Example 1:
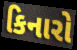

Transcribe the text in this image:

કિનારો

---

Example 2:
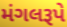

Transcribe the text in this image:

મંગલરૂપે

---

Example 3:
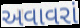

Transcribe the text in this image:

અવાવરાં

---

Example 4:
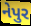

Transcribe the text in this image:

નેપુર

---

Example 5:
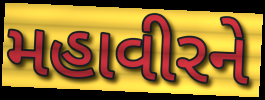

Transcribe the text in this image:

મહાવીરને